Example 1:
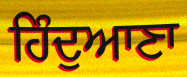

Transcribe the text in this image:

ਹਿੰਦੁਆਣਾ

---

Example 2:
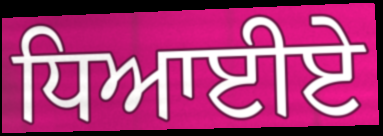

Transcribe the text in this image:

ਧਿਆਈਏ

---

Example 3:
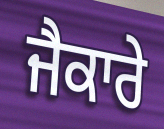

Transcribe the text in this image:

ਜੈਕਾਰੇ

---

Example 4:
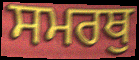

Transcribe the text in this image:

ਸਮਰਥੁ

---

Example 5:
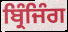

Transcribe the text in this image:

ਬ੍ਰਿੰਜਿੰਗ